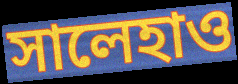
সালেহাও